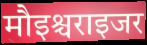
मौइश्चराइजर